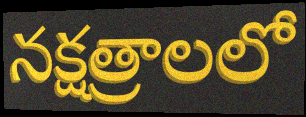
నక్షత్రాలలో